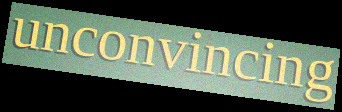
unconvincing